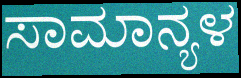
ಸಾಮಾನ್ಯಳ